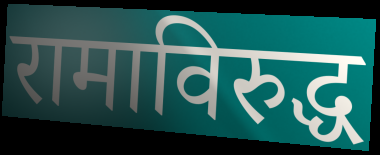
रामाविरुद्ध